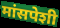
मांसपेशी